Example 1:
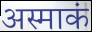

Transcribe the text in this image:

अस्माकं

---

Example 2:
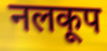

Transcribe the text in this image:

नलकूप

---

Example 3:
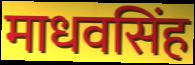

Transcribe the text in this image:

माधवसिंह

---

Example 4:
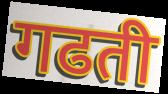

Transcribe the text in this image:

गढती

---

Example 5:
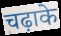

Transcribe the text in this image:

चढ़ाके